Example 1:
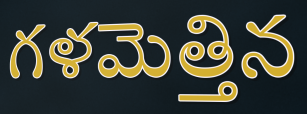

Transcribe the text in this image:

గళమెత్తిన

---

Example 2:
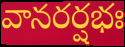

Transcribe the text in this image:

వానరర్షభః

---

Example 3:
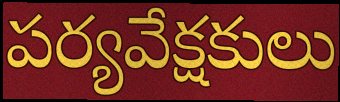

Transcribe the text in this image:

పర్యవేక్షకులు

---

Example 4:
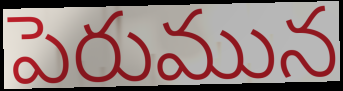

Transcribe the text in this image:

పెరుమున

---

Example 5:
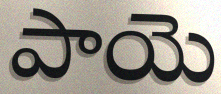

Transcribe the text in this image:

పాయె